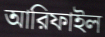
আরিফাইল